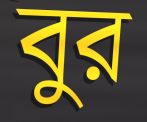
বুর